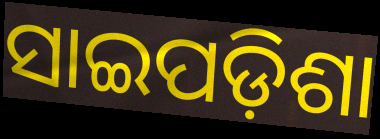
ସାଇପଡ଼ିଶା